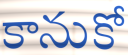
కానుకో